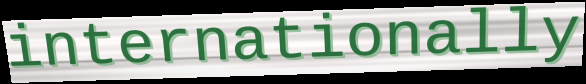
internationally